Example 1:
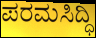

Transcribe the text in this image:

ಪರಮಸಿದ್ಧಿ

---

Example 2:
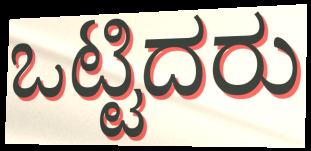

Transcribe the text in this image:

ಒಟ್ಟಿದರು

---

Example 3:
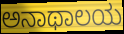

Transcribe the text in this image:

ಅನಾಥಾಲಯ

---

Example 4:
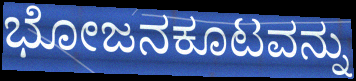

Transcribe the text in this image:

ಭೋಜನಕೂಟವನ್ನು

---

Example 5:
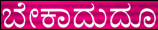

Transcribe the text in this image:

ಬೇಕಾದುದೂ